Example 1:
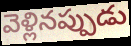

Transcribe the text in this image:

వెళ్లినప్పుడు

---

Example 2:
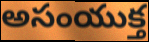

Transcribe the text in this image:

అసంయుక్త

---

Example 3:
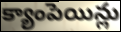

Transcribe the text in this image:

క్యాంపెయిన్లు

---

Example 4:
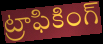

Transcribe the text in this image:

ట్రాఫికింగ్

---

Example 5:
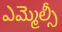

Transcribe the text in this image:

ఎమ్మెల్సీ